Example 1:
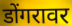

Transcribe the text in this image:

डोंगरावर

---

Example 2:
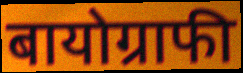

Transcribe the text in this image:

बायोग्राफी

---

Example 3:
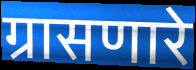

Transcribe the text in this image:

ग्रासणारे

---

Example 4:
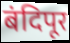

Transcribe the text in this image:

बंदिपूर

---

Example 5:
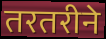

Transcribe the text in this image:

तरतरीने